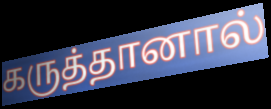
கருத்தானால்